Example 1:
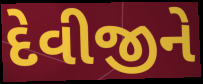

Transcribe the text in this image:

દેવીજીને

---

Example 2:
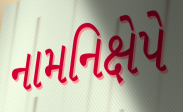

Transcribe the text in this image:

નામનિક્ષેપે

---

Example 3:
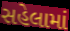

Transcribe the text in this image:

સહેલામાં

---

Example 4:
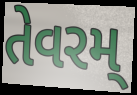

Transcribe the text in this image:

તેવરમ્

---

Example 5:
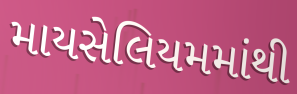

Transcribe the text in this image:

માયસેલિયમમાંથી